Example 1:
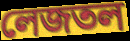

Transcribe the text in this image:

লেজতল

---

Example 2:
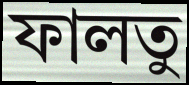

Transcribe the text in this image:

ফালতু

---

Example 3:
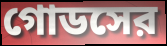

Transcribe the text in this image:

গোডসের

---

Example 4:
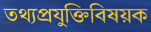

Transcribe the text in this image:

তথ্যপ্রযুক্তিবিষয়ক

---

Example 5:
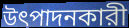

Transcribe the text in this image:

উৎপাদনকারী